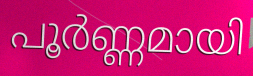
പൂർണ്ണമായി